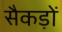
सैकड़ों